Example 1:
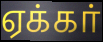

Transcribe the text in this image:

ஏக்கர்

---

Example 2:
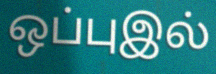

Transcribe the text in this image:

ஒப்புஇல்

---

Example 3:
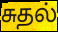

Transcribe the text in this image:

சுதல்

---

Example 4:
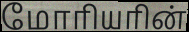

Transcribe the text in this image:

மோரியரின்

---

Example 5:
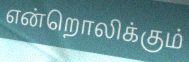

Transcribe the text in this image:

என்றொலிக்கும்